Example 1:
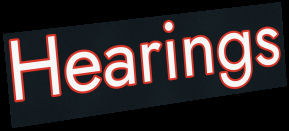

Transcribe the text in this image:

Hearings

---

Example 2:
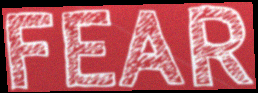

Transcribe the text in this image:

FEAR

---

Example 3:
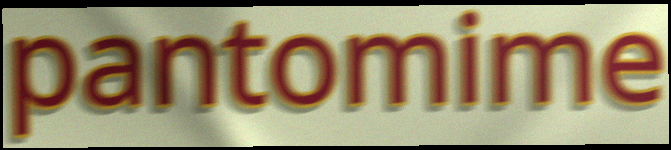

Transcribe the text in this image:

pantomime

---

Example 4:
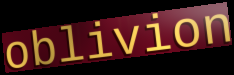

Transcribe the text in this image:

oblivion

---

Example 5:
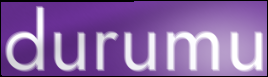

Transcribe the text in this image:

durumu